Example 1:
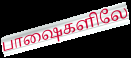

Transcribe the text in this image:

பாஷைகளிலே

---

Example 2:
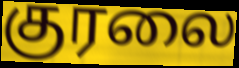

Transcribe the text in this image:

குரலை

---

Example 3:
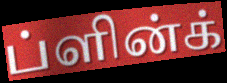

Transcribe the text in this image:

ப்ளின்க்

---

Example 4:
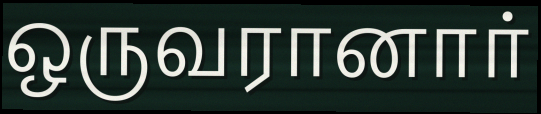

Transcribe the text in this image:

ஒருவரானார்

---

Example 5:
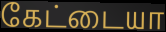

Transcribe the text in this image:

கேட்டையா